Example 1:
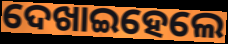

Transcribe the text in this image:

ଦେଖାଇହେଲେ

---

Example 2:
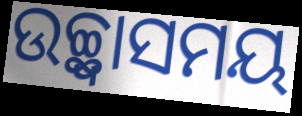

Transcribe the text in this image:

ଉଚ୍ଛ୍ଵାସମୟ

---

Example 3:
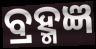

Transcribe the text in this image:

ବ୍ରହ୍ମଜ୍ଞ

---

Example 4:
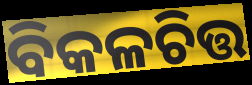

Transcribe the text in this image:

ବିକଳଚିତ୍ତ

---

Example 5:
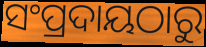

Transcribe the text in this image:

ସଂପ୍ରଦାୟଠାରୁ